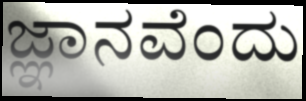
ಜ್ಞಾನವೆಂದು